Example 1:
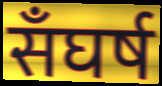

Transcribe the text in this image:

सँघर्ष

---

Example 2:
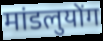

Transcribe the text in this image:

मांडलुयोंग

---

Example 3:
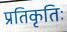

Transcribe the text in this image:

प्रतिकृतिः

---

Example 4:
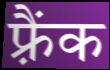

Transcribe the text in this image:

फ़्रैंक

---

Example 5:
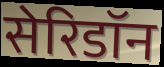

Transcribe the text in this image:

सेरिडॉन